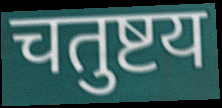
चतुष्टय